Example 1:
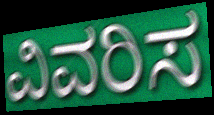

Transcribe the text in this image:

ವಿವರಿಸ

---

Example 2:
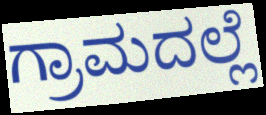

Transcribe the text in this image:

ಗ್ರಾಮದಲ್ಲೆ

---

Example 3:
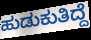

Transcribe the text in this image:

ಹುಡುಕುತಿದ್ದೆ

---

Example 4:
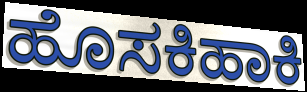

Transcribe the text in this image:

ಹೊಸಕಿಹಾಕಿ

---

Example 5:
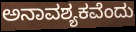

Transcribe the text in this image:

ಅನಾವಶ್ಯಕವೆಂದು